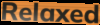
Relaxed